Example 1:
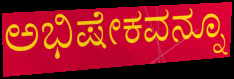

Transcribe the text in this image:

ಅಭಿಷೇಕವನ್ನೂ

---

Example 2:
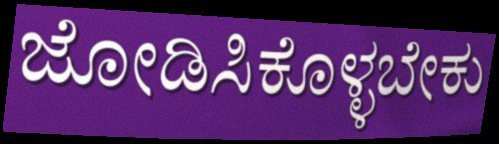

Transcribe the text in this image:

ಜೋಡಿಸಿಕೊಳ್ಳಬೇಕು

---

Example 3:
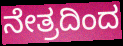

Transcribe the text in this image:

ನೇತ್ರದಿಂದ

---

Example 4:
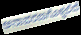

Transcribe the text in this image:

ಅನಾವರಣಗೊಳ್ಳಲಿದೆ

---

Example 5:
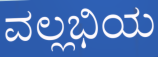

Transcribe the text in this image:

ವಲ್ಲಭಿಯ